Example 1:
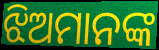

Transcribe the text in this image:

ଝିଅମାନଙ୍କ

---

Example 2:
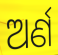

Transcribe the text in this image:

ଅର୍ଣ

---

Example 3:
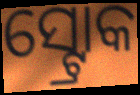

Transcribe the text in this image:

ସ୍ଟ୍ରୋକ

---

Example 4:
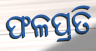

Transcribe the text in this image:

ଫଳପ୍ରତି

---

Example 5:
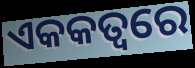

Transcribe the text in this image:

ଏକକତ୍ୱରେ